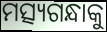
ମତ୍ସ୍ୟଗନ୍ଧାକୁ